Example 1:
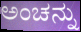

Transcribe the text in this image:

ಅಂಚನ್ನು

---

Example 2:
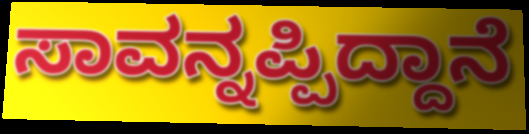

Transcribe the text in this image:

ಸಾವನ್ನಪ್ಪಿದ್ದಾನೆ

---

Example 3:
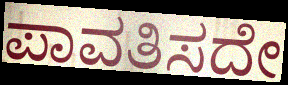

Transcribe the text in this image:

ಪಾವತಿಸದೇ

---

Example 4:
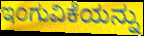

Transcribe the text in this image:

ಇಂಗುವಿಕೆಯನ್ನು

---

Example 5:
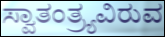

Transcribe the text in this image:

ಸ್ವಾತಂತ್ರ್ಯವಿರುವ